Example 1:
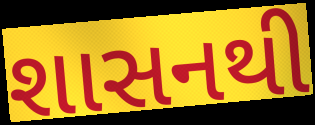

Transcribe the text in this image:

શાસનથી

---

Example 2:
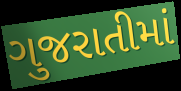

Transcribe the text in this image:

ગુજરાતીમાં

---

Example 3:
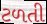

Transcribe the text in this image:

ટળતી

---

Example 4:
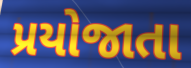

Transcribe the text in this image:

પ્રયોજાતા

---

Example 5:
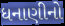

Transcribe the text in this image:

ધનાણીનો